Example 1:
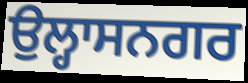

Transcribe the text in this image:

ਉਲ੍ਹਾਸਨਗਰ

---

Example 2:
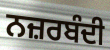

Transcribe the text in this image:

ਨਜ਼ਰਬੰਦੀ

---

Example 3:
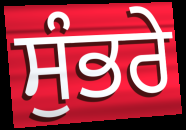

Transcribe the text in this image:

ਸੁੰਭਰੇ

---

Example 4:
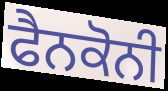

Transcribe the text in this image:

ਫੈਨਕੋਨੀ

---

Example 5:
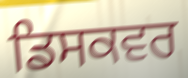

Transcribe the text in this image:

ਡਿਸਕਵਰ